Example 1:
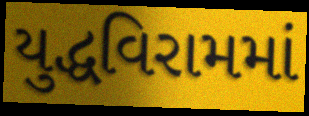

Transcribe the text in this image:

યુદ્ધવિરામમાં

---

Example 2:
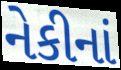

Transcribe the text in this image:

નેકીનાં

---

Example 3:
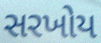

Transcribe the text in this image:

સરખોય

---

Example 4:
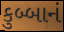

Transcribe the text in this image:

કુબ્બાનં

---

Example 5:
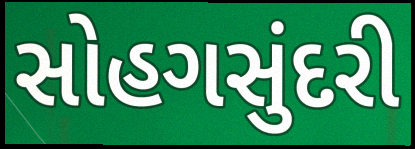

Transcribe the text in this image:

સોહગસુંદરી